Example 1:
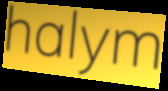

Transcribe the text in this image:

halym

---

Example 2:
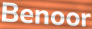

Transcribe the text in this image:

Benoor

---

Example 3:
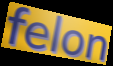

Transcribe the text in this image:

felon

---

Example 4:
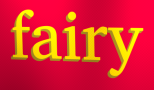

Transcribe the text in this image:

fairy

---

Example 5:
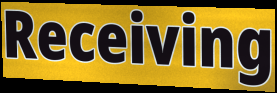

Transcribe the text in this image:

Receiving